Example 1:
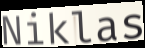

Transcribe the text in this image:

Niklas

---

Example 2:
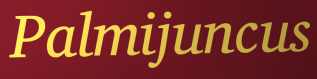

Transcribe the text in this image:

Palmijuncus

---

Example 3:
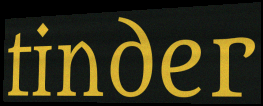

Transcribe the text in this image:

tinder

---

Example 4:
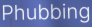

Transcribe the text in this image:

Phubbing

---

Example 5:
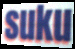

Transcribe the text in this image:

suku